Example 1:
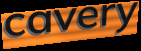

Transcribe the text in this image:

cavery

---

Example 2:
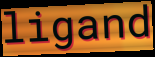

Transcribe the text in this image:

ligand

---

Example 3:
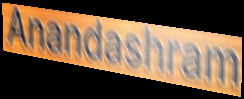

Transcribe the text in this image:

Anandashram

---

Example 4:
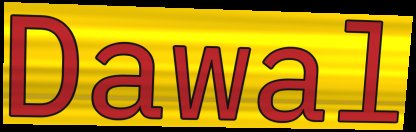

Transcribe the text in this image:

Dawal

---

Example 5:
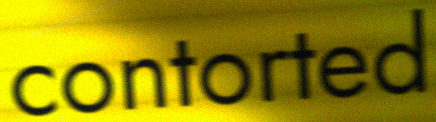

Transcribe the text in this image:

contorted